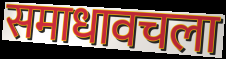
समाधावचला